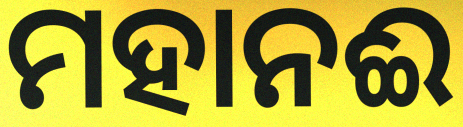
ମହାନଈ